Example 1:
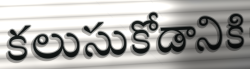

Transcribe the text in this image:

కలుసుకోడానికి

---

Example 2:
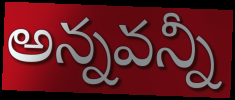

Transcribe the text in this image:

అన్నవన్నీ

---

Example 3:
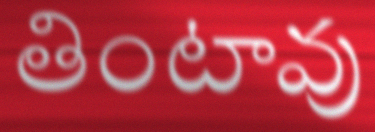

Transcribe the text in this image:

తింటావు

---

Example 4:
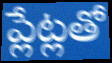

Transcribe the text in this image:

ప్లేట్లతో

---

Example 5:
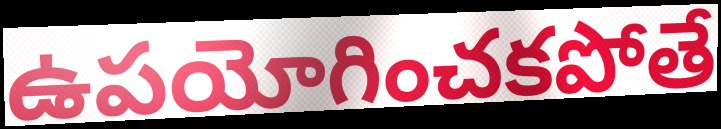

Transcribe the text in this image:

ఉపయోగించకపోతే